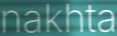
nakhta